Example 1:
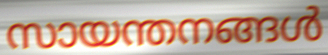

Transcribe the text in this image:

സായന്തനങ്ങൾ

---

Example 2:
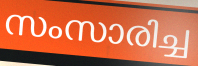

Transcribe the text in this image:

സംസാരിച്ച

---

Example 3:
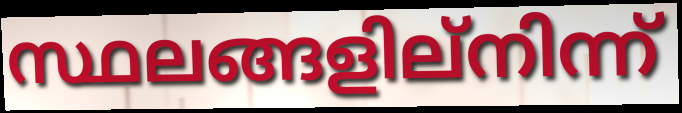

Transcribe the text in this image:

സ്ഥലങ്ങളില്നിന്ന്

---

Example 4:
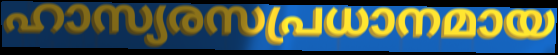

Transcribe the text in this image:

ഹാസ്യരസപ്രധാനമായ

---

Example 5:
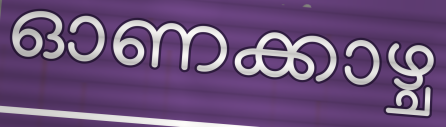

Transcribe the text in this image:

ഓണക്കാഴ്ച